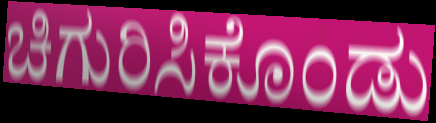
ಚಿಗುರಿಸಿಕೊಂಡು